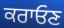
ਕਰਾਓਣ